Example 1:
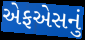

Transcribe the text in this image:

એફએસનું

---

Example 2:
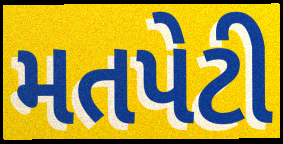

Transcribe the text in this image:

મતપેટી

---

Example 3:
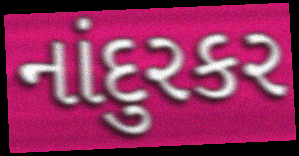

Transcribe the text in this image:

નાંદુરકર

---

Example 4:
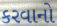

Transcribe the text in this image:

કરવાનો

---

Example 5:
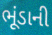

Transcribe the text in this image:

ભૂંડાની